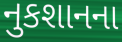
નુકશાનના